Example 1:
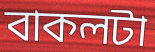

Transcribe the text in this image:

বাকলটা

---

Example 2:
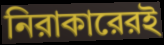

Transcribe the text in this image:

নিরাকারেরই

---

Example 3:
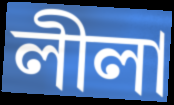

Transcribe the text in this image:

লীলা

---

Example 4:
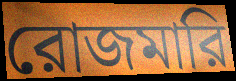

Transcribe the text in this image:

রোজমারি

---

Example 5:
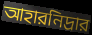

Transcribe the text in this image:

আহারনিদ্রার